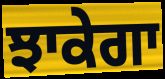
ਝਾਕੇਗਾ